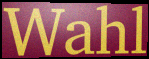
Wahl